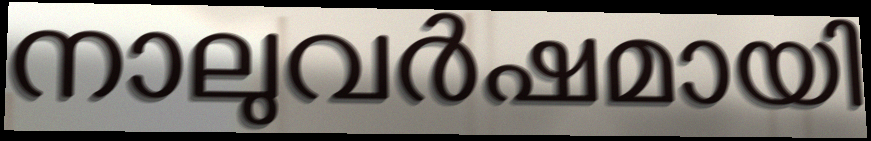
നാലുവർഷമായി